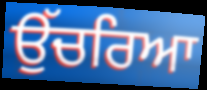
ਉੱਚਰਿਆ